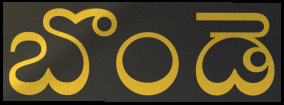
బొండె